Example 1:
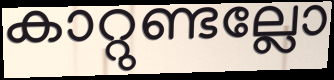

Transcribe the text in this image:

കാറ്റുണ്ടല്ലോ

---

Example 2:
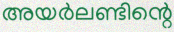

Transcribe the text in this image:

അയർലണ്ടിന്റെ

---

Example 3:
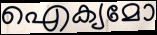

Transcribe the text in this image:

ഐക്യമോ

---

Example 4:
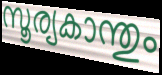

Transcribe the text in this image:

സൂര്യകാന്തും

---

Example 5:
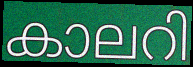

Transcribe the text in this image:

കാലറി